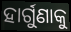
ହାର୍ଗୁଣାକୁ